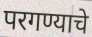
परगण्याचे